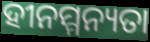
ହୀନମ୍ମନ୍ୟତା